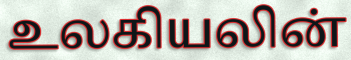
உலகியலின்